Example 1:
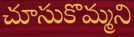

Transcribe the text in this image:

చూసుకొమ్మని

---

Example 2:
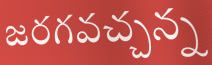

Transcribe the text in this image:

జరగవచ్చన్న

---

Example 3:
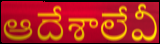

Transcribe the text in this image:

ఆదేశాలేవీ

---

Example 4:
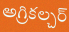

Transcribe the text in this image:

అగ్రికల్చర్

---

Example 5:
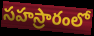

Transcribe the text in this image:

సహస్రారంలో